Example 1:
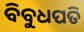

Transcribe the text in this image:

ବିବୁଧପତି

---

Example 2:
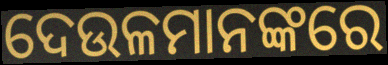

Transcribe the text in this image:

ଦେଉଳମାନଙ୍କରେ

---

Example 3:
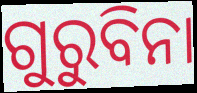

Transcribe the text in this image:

ଗୁରୁବିନା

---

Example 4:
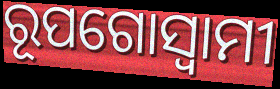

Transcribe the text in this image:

ରୂପଗୋସ୍ୱାମୀ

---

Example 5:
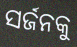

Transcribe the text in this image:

ସର୍ଜନକୁ